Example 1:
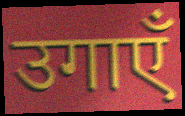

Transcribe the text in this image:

उगाएँ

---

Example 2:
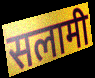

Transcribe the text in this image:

सलामी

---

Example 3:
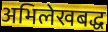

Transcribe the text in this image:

अभिलेखबद्ध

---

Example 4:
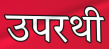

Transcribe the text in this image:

उपरथी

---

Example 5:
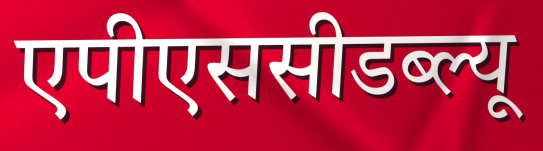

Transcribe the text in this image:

एपीएससीडब्ल्यू